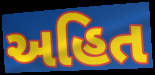
અહિત